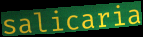
salicaria